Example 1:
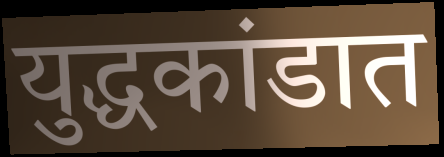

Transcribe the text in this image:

युद्धकांडात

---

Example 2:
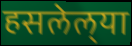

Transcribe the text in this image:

हसलेल्या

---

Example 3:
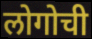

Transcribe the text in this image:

लोगोची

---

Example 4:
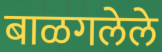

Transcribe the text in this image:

बाळगलेले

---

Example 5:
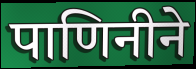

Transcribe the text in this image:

पाणिनीने